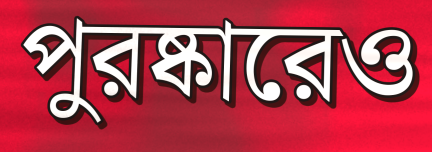
পুরষ্কারেও